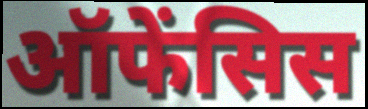
ऑफेंसिस